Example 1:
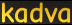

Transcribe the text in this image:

kadva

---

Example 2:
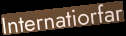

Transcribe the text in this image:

Internatiorfar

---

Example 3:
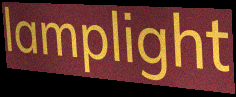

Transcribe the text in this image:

lamplight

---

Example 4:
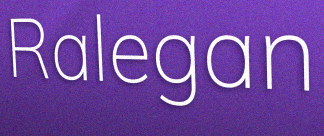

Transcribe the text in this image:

Ralegan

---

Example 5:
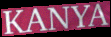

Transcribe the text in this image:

KANYA